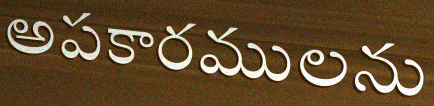
అపకారములను